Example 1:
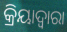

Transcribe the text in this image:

କ୍ରିୟାଦ୍ଵାରା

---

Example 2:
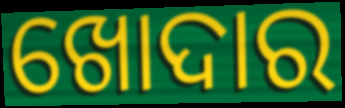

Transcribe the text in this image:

ଖୋଦାର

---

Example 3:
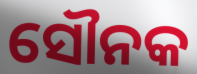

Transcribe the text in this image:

ସୌନକ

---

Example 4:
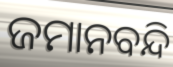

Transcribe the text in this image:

ଜମାନବନ୍ଦି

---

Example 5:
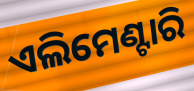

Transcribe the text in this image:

ଏଲିମେଣ୍ଟାରି